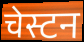
चेस्टन